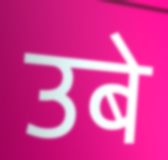
उबे